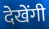
देखेंगी